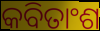
କବିତାଂଶ